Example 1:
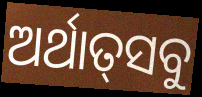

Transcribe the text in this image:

ଅର୍ଥାତ୍‌ସବୁ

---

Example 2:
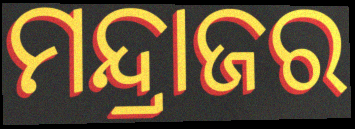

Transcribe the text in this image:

ମନ୍ଦ୍ରାଜର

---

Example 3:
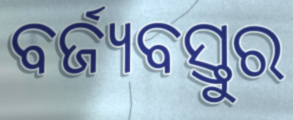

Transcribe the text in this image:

ବର୍ଜ୍ୟବସ୍ତୁର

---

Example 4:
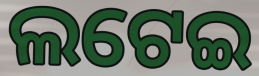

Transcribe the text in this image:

ଲଟେଇ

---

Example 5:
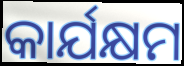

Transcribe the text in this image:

କାର୍ଯକ୍ଷମ